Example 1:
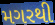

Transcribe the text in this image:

મગરથી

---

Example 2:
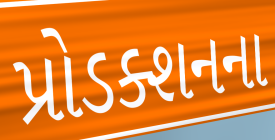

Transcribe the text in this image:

પ્રોડક્શનના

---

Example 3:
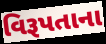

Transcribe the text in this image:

વિરૂપતાના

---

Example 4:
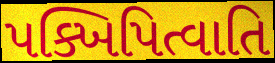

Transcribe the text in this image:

પક્ખિપિત્વાતિ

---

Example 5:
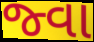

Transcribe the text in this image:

જ્વા